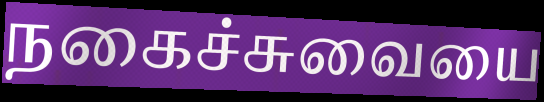
நகைச்சுவையை